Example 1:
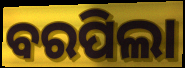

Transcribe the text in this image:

ବରପିଲା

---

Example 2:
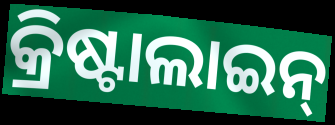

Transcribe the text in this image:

କ୍ରିଷ୍ଟାଲାଇନ୍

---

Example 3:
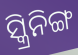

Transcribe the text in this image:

ସ୍କ୍ରିନିଙ୍ଗ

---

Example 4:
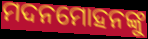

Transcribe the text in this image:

ମଦନମୋହନଙ୍କୁ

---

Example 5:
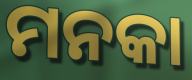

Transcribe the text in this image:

ମନକା